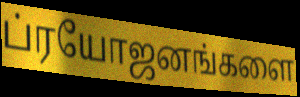
ப்ரயோஜனங்களை